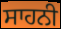
ਸਾਹਨੀ